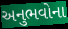
અનુભવોના